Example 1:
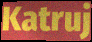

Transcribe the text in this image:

Katruj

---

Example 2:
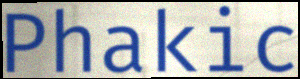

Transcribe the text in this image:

Phakic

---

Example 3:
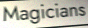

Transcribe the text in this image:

Magicians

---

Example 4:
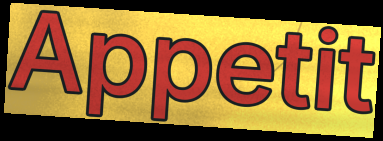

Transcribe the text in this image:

Appetit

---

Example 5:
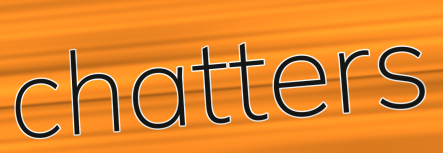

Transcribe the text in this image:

chatters